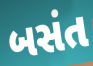
બસંત